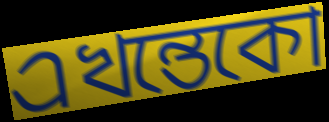
এখন্তেকো